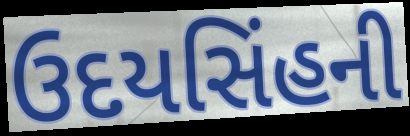
ઉદયસિંહની